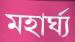
মহার্ঘ্য